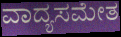
ವಾದ್ಯಸಮೇತ